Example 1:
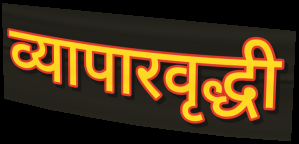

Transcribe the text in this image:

व्यापारवृद्धी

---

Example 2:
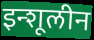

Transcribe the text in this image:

इन्शूलीन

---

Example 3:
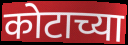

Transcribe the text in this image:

कोटाच्या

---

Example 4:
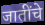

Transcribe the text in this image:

जातींचे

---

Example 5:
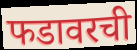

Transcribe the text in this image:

फडावरची